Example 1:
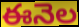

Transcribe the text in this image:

ఈనెల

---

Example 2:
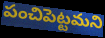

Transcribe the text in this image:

పంచిపెట్టమని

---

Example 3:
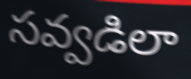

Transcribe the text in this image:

సవ్వడిలా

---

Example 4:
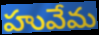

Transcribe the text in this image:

హువేమ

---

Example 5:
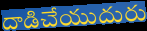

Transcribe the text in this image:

దాడిచేయుదురు